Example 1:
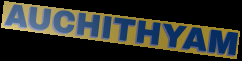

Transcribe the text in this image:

AUCHITHYAM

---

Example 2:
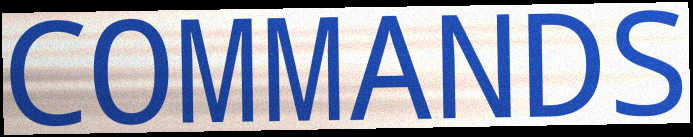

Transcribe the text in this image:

COMMANDS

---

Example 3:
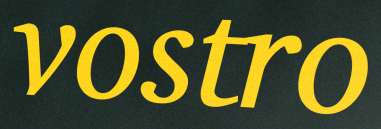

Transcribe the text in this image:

vostro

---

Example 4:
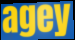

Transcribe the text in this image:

agey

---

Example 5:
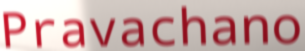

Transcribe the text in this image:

Pravachano